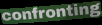
confronting